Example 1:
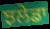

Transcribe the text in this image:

ਝਲੇਡਾ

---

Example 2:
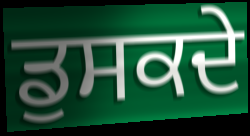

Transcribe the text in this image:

ਡੁਸਕਦੇ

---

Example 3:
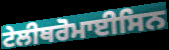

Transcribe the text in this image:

ਟੇਲੀਥਰੋਮਾਈਸਿਨ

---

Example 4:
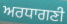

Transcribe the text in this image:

ਅਰਧਾਗਣੀ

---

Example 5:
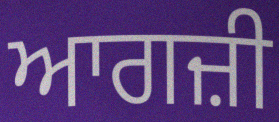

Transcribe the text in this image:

ਆਗਜ਼ੀ